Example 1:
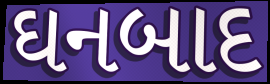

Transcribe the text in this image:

ઘનબાદ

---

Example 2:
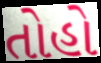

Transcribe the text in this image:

તોહો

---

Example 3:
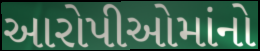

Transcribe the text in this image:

આરોપીઓમાંનો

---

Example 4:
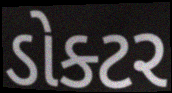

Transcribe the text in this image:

ડોક્ટર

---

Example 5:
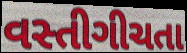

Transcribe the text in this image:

વસ્તીગીચતા